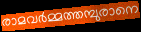
രാമവർമ്മത്തമ്പുരാനെ